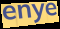
enye